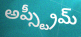
అప్స్ట్రీమ్